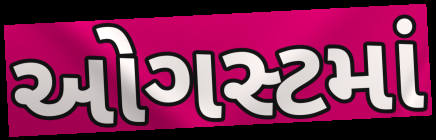
ઓગસ્ટમાં